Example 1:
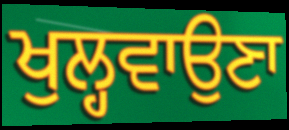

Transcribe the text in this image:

ਖੁਲ੍ਹਵਾਉਣਾ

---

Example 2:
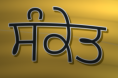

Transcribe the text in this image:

ਸੰਕੇਤ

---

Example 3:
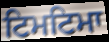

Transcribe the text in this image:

ਟਿਮਟਿਮਾ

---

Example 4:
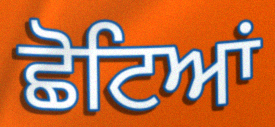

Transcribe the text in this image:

ਛੋਟਿਆਂ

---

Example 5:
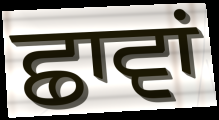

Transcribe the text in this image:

ਛਾਵਾਂ